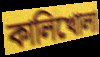
কালিখোলা